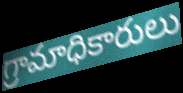
గ్రామాధికారులు